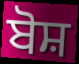
ਬੋਸ਼